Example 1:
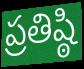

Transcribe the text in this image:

ప్రతిష్ఠి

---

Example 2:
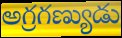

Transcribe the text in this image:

అగ్రగణ్యుడు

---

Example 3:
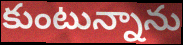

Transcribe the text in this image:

కుంటున్నాను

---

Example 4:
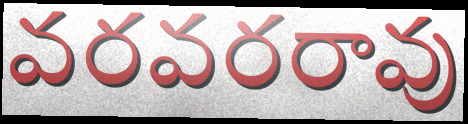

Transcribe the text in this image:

వరవరరావు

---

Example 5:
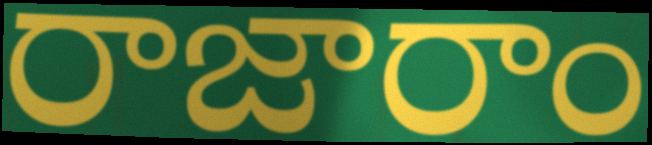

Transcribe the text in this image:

రాజారాం